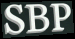
SBP